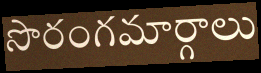
సొరంగమార్గాలు